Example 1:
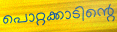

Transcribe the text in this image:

പൊറ്റക്കാടിന്റെ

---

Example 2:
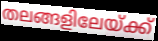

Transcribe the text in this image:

തലങ്ങളിലേയ്ക്ക്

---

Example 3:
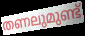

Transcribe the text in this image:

തണലുമുണ്ട്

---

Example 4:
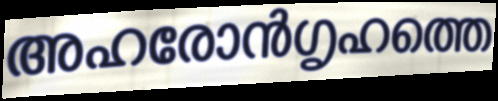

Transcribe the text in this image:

അഹരോൻഗൃഹത്തെ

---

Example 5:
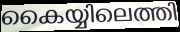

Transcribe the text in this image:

കൈയ്യിലെത്തി